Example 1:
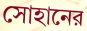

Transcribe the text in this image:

সোহানের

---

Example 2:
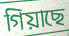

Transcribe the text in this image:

গিয়াছে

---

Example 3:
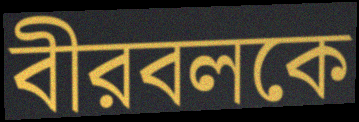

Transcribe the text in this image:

বীরবলকে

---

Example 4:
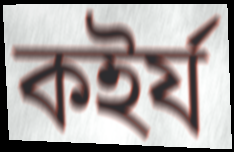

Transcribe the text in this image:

কইর্য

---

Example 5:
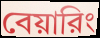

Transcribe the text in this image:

বেয়ারিং